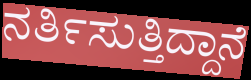
ನರ್ತಿಸುತ್ತಿದ್ದಾನೆ